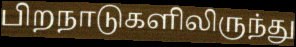
பிறநாடுகளிலிருந்து